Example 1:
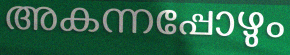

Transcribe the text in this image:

അകന്നപ്പോഴും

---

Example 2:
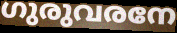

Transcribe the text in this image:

ഗുരുവരനേ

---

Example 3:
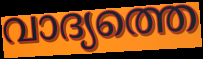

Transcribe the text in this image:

വാദ്യത്തെ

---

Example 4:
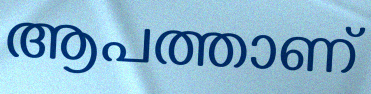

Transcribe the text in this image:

ആപത്താണ്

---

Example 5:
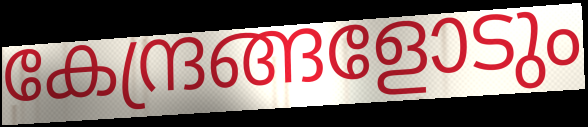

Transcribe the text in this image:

കേന്ദ്രങ്ങളോടും